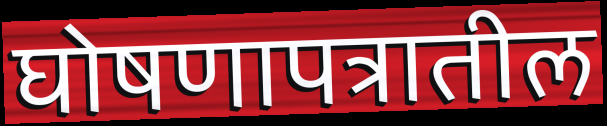
घोषणापत्रातील